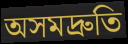
অসমদ্রুতি